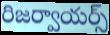
రిజర్వాయర్స్